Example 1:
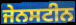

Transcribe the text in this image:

ਜੇਨਸਟੀਨ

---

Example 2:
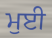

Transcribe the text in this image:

ਮੁਈ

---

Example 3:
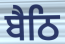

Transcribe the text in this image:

ਬੈਠਿ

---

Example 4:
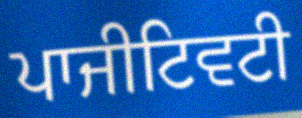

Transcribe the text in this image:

ਪਾਜੀਟਿਵਟੀ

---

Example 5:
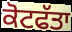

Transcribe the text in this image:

ਕੋਟਫੱਤਾ